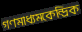
গণমাধ্যমকেন্দ্রিক